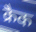
क्रैक